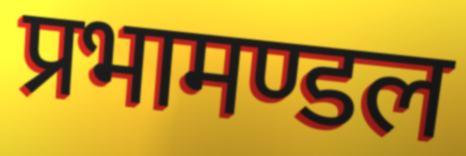
प्रभामण्डल